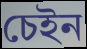
চেইন